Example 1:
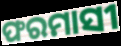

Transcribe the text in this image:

ଫରମାସୀ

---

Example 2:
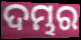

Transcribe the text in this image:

ଦମ୍ଭର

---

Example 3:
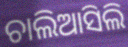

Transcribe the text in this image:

ଚାଲିଆସିଲି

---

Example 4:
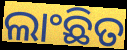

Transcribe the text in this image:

ଲାଂଛିତ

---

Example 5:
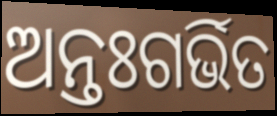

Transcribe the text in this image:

ଅନ୍ତଃଗର୍ଭିତ